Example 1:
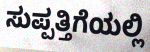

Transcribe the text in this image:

ಸುಪ್ಪತ್ತಿಗೆಯಲ್ಲಿ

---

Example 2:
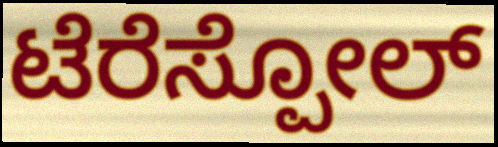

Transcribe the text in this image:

ಟೆರೆಸ್ಪೋಲ್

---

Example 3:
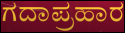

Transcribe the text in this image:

ಗದಾಪ್ರಹಾರ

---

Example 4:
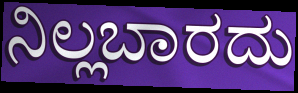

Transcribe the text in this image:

ನಿಲ್ಲಬಾರದು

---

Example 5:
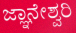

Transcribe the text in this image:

ಜ್ಞಾನೇಶ್ವರಿ